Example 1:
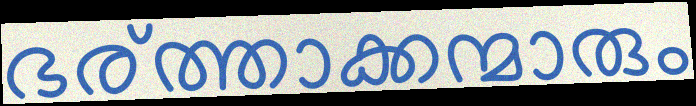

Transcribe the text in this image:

ഭര്ത്താക്കന്മാരും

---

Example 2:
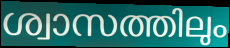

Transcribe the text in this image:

ശ്വാസത്തിലും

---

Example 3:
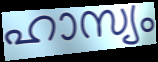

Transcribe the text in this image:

ഹാസ്യം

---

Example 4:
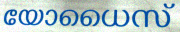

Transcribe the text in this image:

യോധൈസ്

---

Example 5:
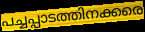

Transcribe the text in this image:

പച്ചപ്പാടത്തിനക്കരെ